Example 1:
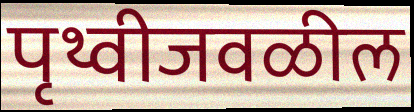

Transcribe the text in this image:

पृथ्वीजवळील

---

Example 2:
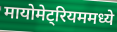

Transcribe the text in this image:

मायोमेट्रियममध्ये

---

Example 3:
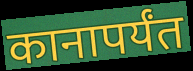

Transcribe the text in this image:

कानापर्यंत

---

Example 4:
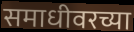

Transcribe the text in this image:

समाधीवरच्या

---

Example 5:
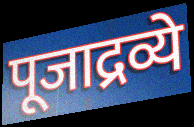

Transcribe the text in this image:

पूजाद्रव्ये